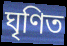
ঘৃণিত